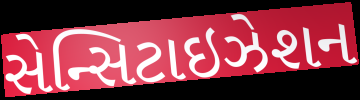
સેન્સિટાઇઝેશન